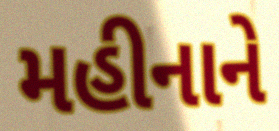
મહીનાને